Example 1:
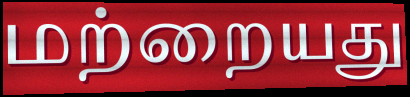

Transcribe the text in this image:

மற்றையது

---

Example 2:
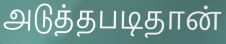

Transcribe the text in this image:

அடுத்தபடிதான்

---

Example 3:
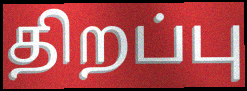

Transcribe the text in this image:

திறப்பு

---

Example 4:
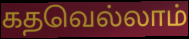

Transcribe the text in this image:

கதவெல்லாம்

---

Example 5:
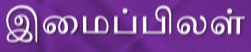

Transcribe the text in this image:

இமைப்பிலள்